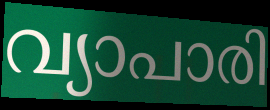
വ്യാപാരി